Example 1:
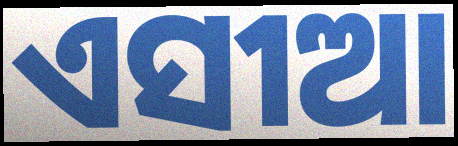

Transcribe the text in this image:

ଏସୀଆ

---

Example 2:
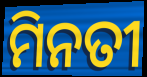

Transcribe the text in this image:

ମିନତୀ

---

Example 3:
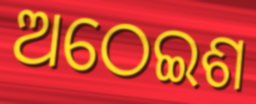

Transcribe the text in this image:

ଅଠେଇଶ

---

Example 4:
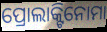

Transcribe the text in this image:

ପ୍ରୋଲାକ୍ଟିନୋମା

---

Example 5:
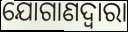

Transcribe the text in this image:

ଯୋଗାଣଦ୍ଵାରା